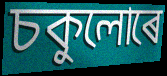
চকুলোৰে